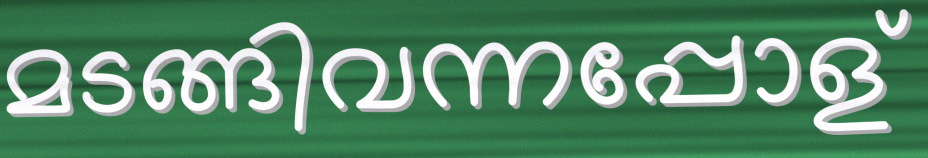
മടങ്ങിവന്നപ്പോള്